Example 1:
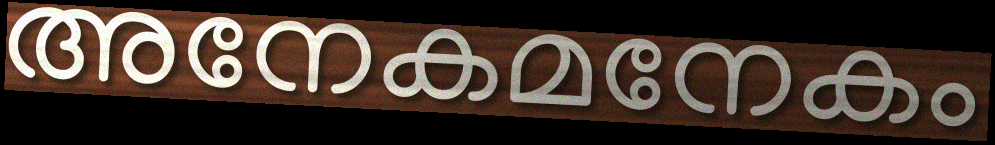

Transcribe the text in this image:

അനേകമനേകം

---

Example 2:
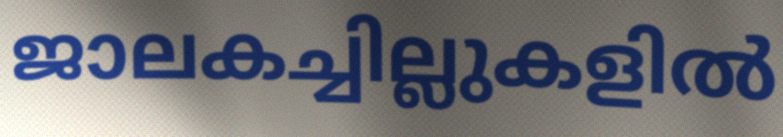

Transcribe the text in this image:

ജാലകച്ചില്ലുകളിൽ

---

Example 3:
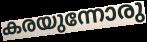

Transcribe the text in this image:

കരയുന്നോരു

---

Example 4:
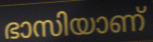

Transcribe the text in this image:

ഭാസിയാണ്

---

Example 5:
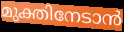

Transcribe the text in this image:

മുക്തിനേടാൻ